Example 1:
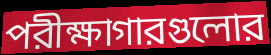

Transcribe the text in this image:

পরীক্ষাগারগুলোর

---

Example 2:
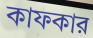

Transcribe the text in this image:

কাফকার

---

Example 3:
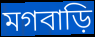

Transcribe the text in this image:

মগবাড়ি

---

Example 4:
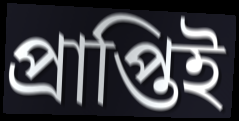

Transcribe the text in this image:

প্রাপ্তিই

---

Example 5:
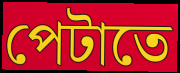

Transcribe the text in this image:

পেটাতে